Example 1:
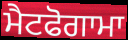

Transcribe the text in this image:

ਮੈਟਫੋਗਾਮਾ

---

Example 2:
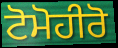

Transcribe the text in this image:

ਟੋਮੋਹੀਰੋ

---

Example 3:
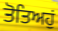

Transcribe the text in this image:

ਤੋਤਿਅਹੁਂ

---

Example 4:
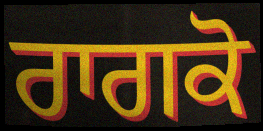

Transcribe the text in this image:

ਰਾਗਕੋ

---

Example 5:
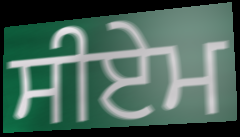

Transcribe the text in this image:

ਸੀਏਮ